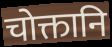
चोक्तानि